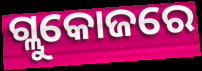
ଗ୍ଲୁକୋଜରେ